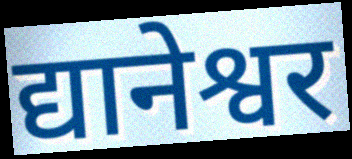
द्यानेश्वर